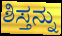
ಶಿಸ್ತನ್ನು